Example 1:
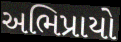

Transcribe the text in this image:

અભિપ્રાયો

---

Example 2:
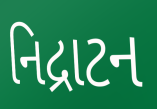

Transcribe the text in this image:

નિદ્રાટન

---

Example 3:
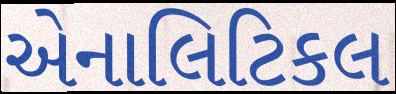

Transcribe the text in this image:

એનાલિટિકલ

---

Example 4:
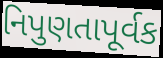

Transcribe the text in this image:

નિપુણતાપૂર્વક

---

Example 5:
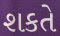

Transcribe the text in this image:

શકતે